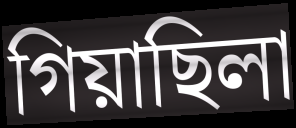
গিয়াছিলা